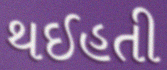
થઈહતી